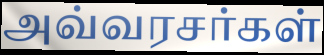
அவ்வரசர்கள்